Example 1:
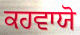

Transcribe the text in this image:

ਕਹਵਾਯੋ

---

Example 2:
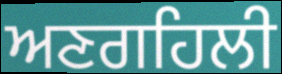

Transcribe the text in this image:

ਅਣਗਹਿਲੀ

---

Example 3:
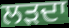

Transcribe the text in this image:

ਲੜਦਾ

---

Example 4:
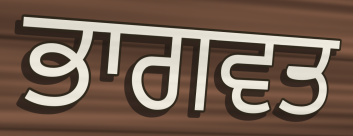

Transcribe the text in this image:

ਭਾਗਵਤ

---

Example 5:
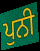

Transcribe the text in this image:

ਪੁਨੀ